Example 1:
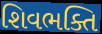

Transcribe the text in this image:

શિવભક્તિ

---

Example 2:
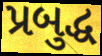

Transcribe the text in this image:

પ્રબુદ્ધ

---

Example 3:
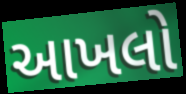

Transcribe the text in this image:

આખલો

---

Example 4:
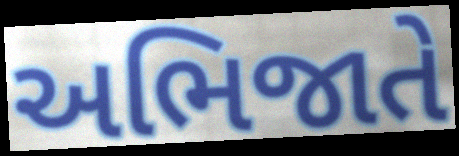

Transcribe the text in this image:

અભિજાતે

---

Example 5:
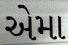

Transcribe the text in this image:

એમા